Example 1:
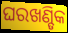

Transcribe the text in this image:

ଘରଖଣ୍ଡିକ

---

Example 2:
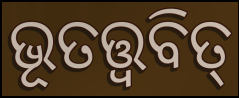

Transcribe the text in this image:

ଭୂତତ୍ତ୍ୱବିତ୍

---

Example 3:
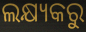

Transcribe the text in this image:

ଲକ୍ଷ୍ୟକରୁ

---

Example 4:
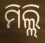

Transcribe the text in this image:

ମିଲ୍ଲି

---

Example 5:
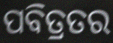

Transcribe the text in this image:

ପବିତ୍ରତର